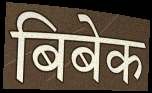
बिबेक